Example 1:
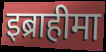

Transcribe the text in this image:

इब्राहीमा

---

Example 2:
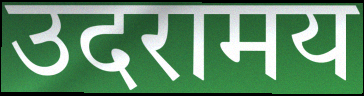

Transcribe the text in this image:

उदरामय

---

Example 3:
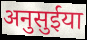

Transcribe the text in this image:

अनुसुईया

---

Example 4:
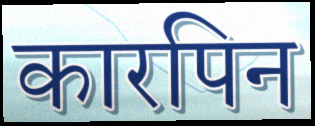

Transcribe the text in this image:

कारपिन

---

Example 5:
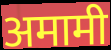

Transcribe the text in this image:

अमामी